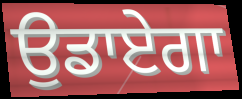
ਉਡਾਏਗਾ